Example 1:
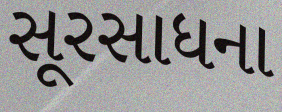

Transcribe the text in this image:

સૂરસાધના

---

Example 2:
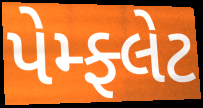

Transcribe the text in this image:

પેમ્ફ્લેટ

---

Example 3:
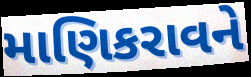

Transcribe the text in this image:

માણિકરાવને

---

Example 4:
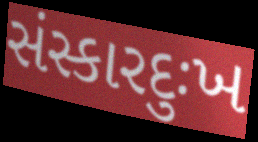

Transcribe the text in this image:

સંસ્કારદુઃખ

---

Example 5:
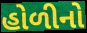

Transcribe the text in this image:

હોળીનો